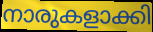
നാരുകളാക്കി